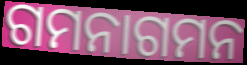
ଗମନାଗମନ